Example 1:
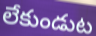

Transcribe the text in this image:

లేకుండుట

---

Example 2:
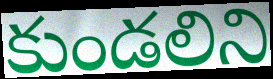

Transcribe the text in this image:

కుండలిని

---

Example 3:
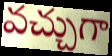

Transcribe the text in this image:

వచ్చుగా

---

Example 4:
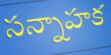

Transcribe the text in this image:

సన్నాహక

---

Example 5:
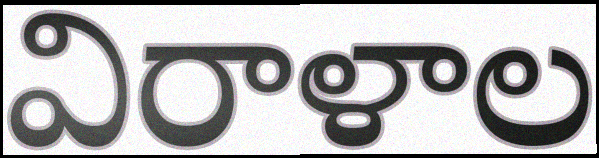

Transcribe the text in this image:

విరాళాల